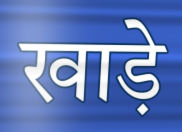
खाड़े